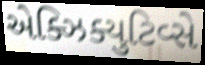
એક્ઝિક્યુટિવ્સે